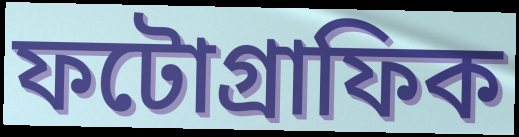
ফটোগ্ৰাফিক